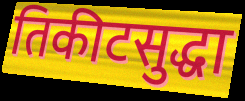
तिकीटसुद्धा